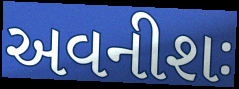
અવનીશઃ